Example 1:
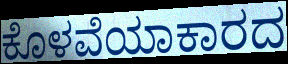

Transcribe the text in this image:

ಕೊಳವೆಯಾಕಾರದ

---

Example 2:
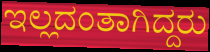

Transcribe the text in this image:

ಇಲ್ಲದಂತಾಗಿದ್ದರು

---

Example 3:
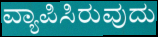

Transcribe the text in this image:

ವ್ಯಾಪಿಸಿರುವುದು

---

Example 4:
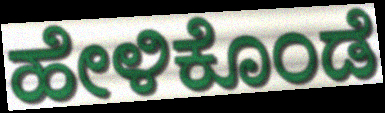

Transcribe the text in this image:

ಹೇಳಿಕೊಂಡೆ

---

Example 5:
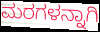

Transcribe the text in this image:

ಮರಗಳನ್ನಾಗಿ